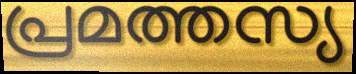
പ്രമത്തസ്യ